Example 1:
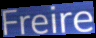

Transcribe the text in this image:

Freire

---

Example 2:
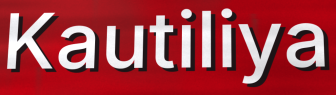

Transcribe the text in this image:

Kautiliya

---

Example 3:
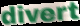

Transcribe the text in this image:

divert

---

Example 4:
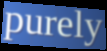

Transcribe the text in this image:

purely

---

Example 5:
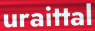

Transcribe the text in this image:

uraittal